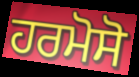
ਹਰਮੋਸੋ